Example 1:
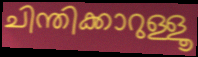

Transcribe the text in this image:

ചിന്തിക്കാറുള്ളൂ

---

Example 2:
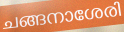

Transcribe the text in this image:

ചങ്ങനാശേരി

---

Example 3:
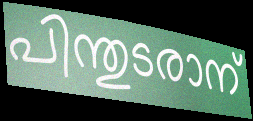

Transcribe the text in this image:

പിന്തുടരാന്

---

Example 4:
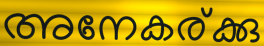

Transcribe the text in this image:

അനേകര്ക്കു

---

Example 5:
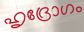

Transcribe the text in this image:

ഹൃദ്രോഗം